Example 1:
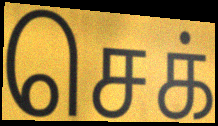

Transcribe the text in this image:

செக்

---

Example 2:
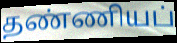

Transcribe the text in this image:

தண்ணியப்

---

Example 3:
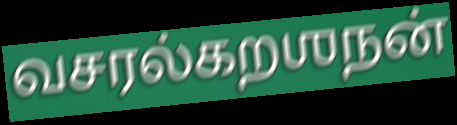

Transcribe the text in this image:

வசரல்கறஶநன்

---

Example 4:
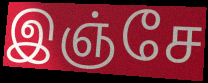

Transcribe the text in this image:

இஞ்சே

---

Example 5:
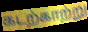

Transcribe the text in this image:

கடற்காற்று